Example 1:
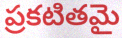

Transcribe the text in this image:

ప్రకటితమై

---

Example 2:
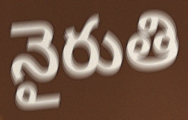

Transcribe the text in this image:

నైరుతి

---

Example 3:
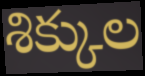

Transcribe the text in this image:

శిక్కుల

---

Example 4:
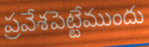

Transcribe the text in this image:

ప్రవేశపెట్టేముందు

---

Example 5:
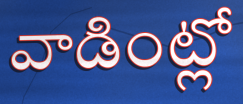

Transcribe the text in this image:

వాడింట్లో